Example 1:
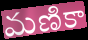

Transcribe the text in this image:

మణికా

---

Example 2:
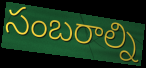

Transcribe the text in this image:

సంబరాల్ని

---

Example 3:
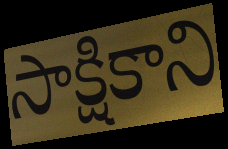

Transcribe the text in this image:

సాక్షికాని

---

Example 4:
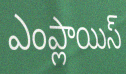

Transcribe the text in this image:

ఎంప్లాయిస్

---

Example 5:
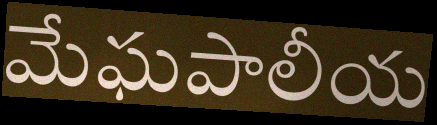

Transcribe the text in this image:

మేఘపాలీయ